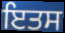
ਇਤਸ